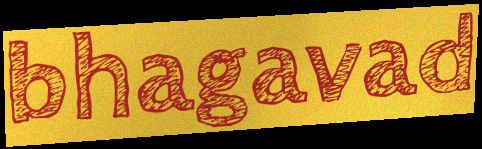
bhagavad